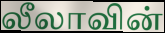
லீலாவின்